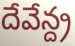
దేవేన్ద్ర